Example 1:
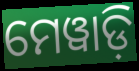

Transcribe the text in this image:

ମେୱାଡ଼ି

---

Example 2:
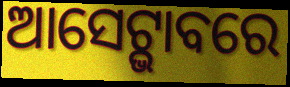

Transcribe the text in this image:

ଆସେଟ୍ଭାବରେ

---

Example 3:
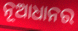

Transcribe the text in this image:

ନୂଆଧାନର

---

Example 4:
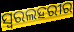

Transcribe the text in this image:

ସ୍ୱରଲହରୀର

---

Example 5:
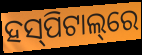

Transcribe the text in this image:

ହସ୍‌ପିଟାଲ୍‌ରେ